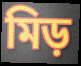
মিড়